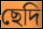
ছেদি